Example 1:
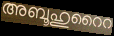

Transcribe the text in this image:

അബൂഹുറൈറ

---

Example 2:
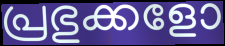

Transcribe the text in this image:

പ്രഭുക്കളോ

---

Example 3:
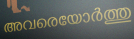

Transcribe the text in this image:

അവരെയോർത്തു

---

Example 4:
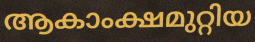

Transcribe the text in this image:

ആകാംക്ഷമുറ്റിയ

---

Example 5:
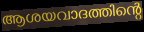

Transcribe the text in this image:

ആശയവാദത്തിന്റെ